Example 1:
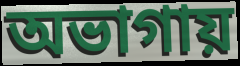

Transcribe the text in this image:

অভাগায়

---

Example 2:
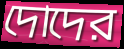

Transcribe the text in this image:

দোদের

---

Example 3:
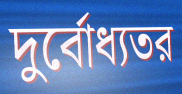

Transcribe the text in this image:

দুর্বোধ্যতর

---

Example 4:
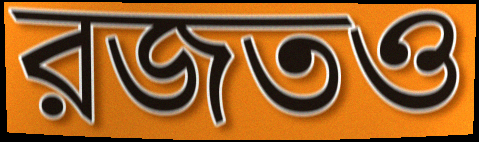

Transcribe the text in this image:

রজতও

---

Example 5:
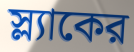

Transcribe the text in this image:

স্ল্যাকের